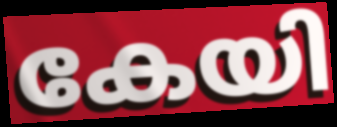
കേയി